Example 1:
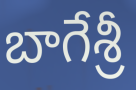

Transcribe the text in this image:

బాగేశ్రీ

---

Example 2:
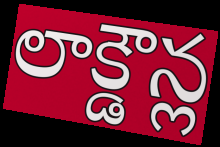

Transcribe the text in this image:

లాక్డౌన్ల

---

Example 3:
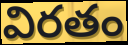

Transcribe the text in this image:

విరతం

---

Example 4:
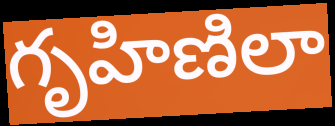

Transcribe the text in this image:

గృహిణిలా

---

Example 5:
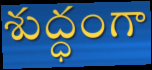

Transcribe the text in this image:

శుద్ధంగా